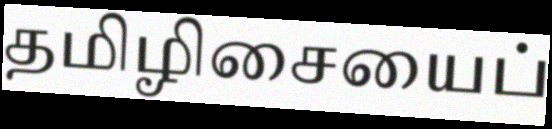
தமிழிசையைப்